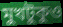
মুখটুকুও